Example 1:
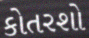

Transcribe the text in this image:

કોતરશો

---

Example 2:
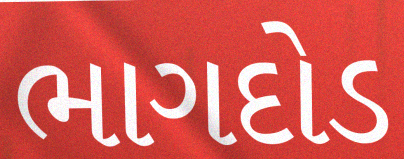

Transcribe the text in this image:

ભાગદોડ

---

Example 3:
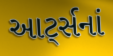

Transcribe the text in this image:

આર્ટ્સનાં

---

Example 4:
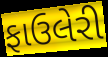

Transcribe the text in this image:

ફાઉલેરી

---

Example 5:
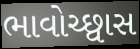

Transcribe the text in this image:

ભાવોચ્છ્વાસ